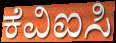
ಕೆವಿಐಸಿ